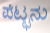
ಪೆಟ್ಟನು